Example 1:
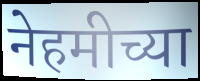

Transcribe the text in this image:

नेहमीच्या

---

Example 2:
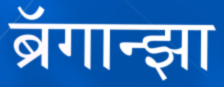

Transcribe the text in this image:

ब्रॅगान्झा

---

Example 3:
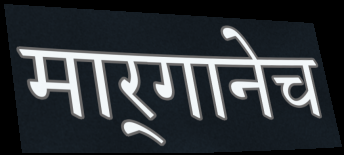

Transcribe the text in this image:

मार्गानेच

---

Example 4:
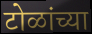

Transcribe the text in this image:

टोळांच्या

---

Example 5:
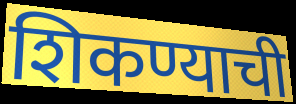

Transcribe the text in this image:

शिकण्याची